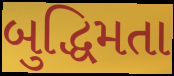
બુદ્ધિમતા